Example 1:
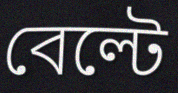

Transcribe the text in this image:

বেল্টে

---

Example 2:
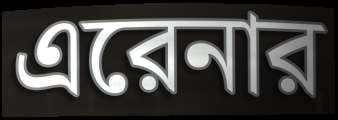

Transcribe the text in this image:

এরেনার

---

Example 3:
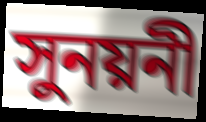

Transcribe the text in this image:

সুনয়নী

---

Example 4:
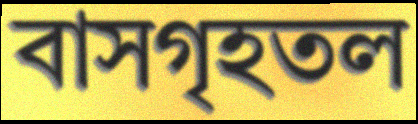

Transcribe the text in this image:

বাসগৃহতল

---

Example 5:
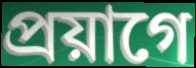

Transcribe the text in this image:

প্রয়াগে